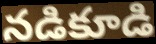
నడికూడి